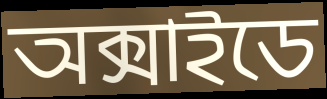
অক্সাইডে